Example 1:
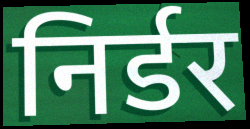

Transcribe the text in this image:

निर्डर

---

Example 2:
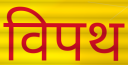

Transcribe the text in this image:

विपथ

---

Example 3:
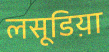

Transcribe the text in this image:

लसूडिय़ा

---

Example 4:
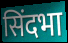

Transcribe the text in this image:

सिंदभा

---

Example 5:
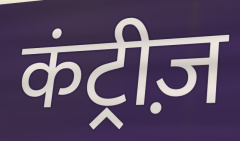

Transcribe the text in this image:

कंट्रीज़